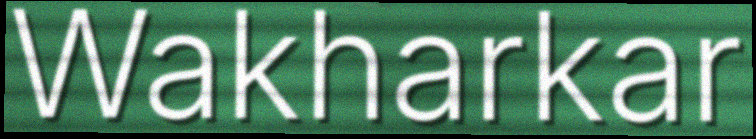
Wakharkar